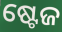
ଷ୍ଟେଜ